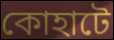
কোহাটে